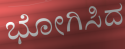
ಭೋಗಿಸಿದ